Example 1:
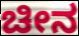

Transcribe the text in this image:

ಚೀನ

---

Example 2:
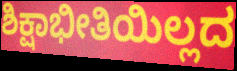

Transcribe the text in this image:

ಶಿಕ್ಷಾಭೀತಿಯಿಲ್ಲದ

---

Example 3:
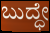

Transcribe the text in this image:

ಬುದ್ಧೇ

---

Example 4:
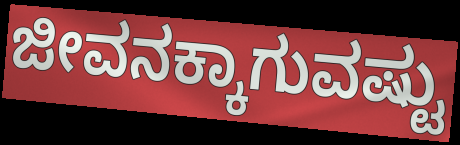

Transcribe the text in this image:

ಜೀವನಕ್ಕಾಗುವಷ್ಟು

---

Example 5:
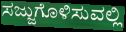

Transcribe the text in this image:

ಸಜ್ಜುಗೊಳಿಸುವಲ್ಲಿ